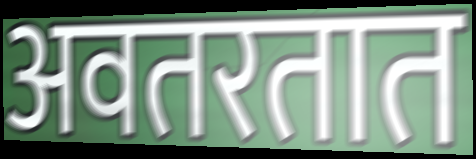
अवतरतात